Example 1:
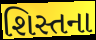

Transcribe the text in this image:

શિસ્તના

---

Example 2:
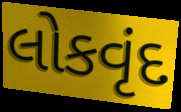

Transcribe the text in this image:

લોકવૃંદ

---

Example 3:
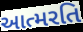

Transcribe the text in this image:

આત્મરતિ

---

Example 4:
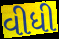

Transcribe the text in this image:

વીધી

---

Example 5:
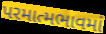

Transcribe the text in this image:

પરમાત્મભાવમાં